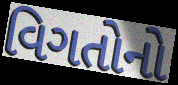
વિગતોનો